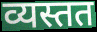
व्यस्तत